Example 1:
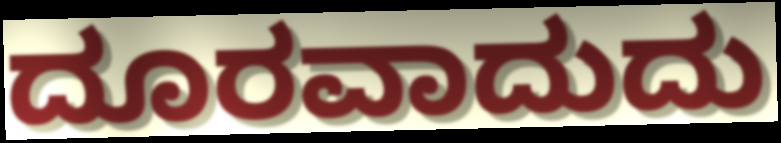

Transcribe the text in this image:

ದೂರವಾದುದು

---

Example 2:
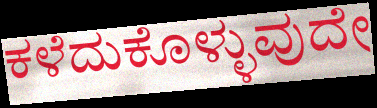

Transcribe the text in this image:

ಕಳೆದುಕೊಳ್ಳುವುದೇ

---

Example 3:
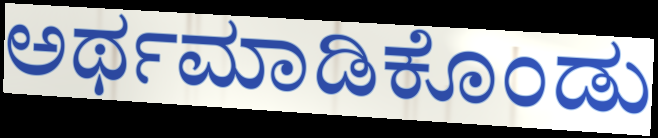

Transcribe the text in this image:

ಅರ್ಥಮಾಡಿಕೊಂಡು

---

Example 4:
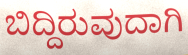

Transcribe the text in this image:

ಬಿದ್ದಿರುವುದಾಗಿ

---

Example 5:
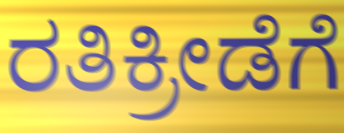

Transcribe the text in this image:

ರತಿಕ್ರೀಡೆಗೆ